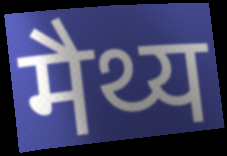
मैथ्य